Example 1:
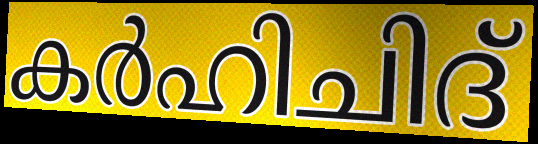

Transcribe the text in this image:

കർഹിചിദ്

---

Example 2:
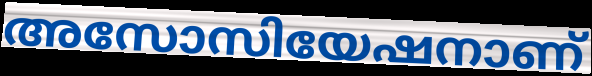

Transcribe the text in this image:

അസോസിയേഷനാണ്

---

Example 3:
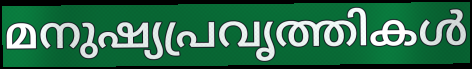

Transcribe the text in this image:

മനുഷ്യപ്രവൃത്തികൾ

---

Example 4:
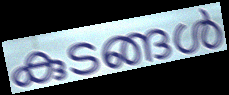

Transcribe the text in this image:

കുടങ്ങൾ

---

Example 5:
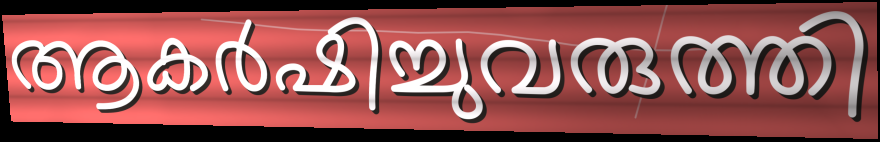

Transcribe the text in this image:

ആകർഷിച്ചുവരുത്തി